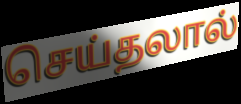
செய்தலால்